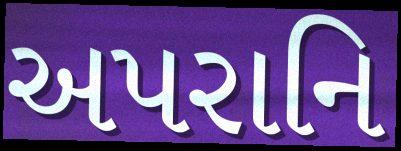
અપરાનિ